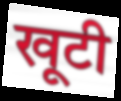
खूटी